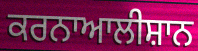
ਕਰਨਾਆਲੀਸ਼ਾਨ